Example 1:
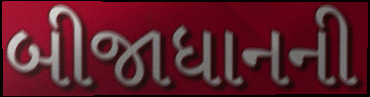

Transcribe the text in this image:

બીજાધાનની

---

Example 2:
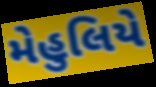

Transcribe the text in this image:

મેહુલિયે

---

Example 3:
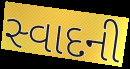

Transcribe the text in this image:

સ્વાદની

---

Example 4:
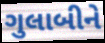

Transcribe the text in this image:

ગુલાબીને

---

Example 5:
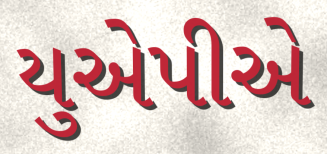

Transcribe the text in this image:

યુએપીએ